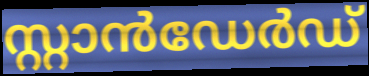
സ്റ്റാൻഡേർഡ്